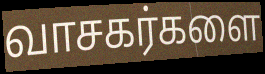
வாசகர்களை